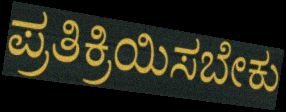
ಪ್ರತಿಕ್ರಿಯಿಸಬೇಕು